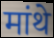
मांथे